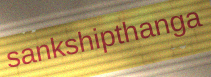
sankshipthanga